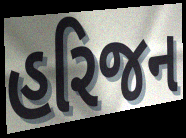
હરિજન